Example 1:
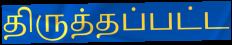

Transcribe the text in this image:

திருத்தப்பட்ட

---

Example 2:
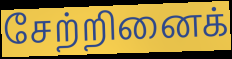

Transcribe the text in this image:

சேற்றினைக்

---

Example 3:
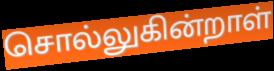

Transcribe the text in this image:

சொல்லுகின்றாள்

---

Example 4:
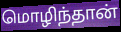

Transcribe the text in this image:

மொழிந்தான்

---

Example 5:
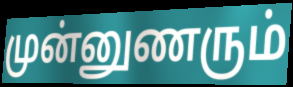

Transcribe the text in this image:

முன்னுணரும்